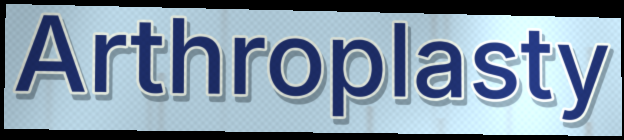
Arthroplasty